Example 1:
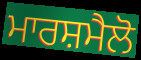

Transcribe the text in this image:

ਮਾਰਸ਼ਮੈਲੋ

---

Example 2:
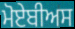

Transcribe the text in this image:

ਮੋਏਬੀਅਸ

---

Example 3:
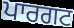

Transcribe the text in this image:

ਪਾਰਗਟ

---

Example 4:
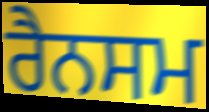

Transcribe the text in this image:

ਰੈਨਸਮ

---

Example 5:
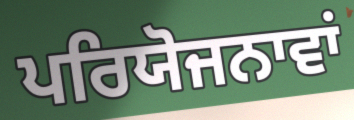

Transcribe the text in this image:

ਪਰਿਯੋਜਨਾਵਾਂ